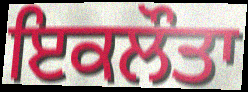
ਇਕਲੌਤਾ